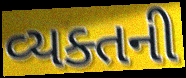
વ્યક્તની